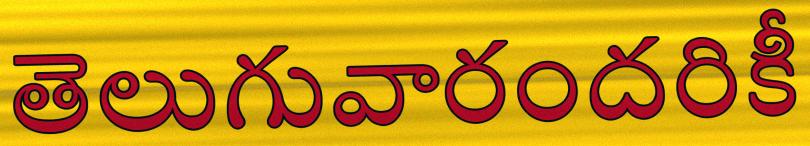
తెలుగువారందరికీ